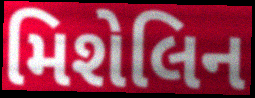
મિશેલિન